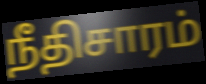
நீதிசாரம்